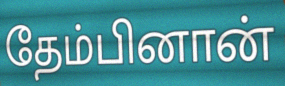
தேம்பினான்